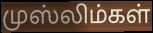
முஸ்லிம்கள்